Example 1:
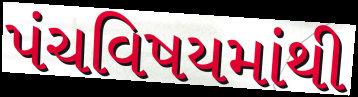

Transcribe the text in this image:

પંચવિષયમાંથી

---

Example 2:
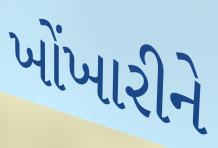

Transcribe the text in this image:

ખોંખારીને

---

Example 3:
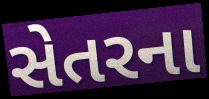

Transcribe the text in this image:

સેતરના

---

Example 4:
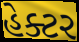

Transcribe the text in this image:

હેક્ટર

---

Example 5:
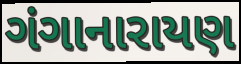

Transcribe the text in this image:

ગંગાનારાયણ